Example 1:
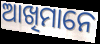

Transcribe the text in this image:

ଆଖିମାନେ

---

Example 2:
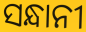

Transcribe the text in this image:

ସନ୍ଧାନୀ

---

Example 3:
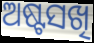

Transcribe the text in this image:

ଅଷ୍ଟସଖି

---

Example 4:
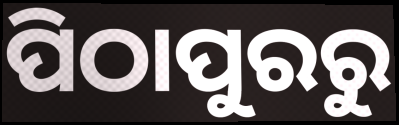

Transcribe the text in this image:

ପିଠାପୁରରୁ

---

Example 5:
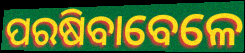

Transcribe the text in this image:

ପରଷିବାବେଳେ